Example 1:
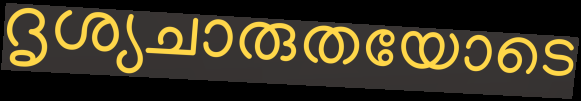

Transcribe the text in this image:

ദൃശ്യചാരുതയോടെ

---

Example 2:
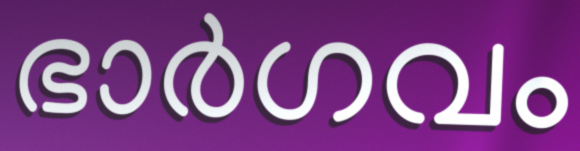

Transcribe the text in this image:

ഭാർഗവം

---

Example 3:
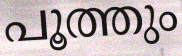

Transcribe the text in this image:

പൂത്തും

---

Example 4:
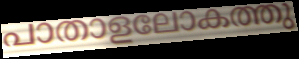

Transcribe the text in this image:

പാതാളലോകത്തു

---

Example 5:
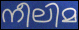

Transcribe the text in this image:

നീലിമ